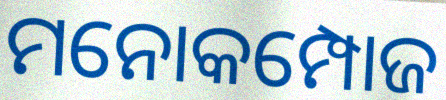
ମନୋକମ୍ପୋଜ